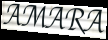
AMARA